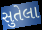
સુતેલા